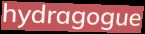
hydragogue